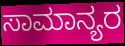
ಸಾಮಾನ್ಯರ